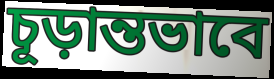
চূড়ান্তভাবে